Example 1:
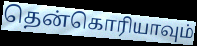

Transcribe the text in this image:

தென்கொரியாவும்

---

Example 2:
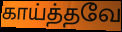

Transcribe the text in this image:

காய்த்தவே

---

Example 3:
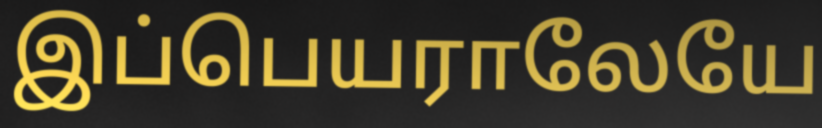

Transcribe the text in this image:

இப்பெயராலேயே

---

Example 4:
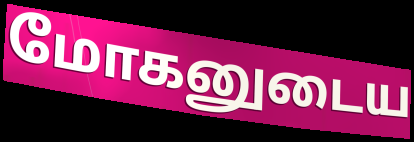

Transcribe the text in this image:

மோகனுடைய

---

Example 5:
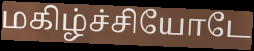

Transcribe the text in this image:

மகிழ்ச்சியோடே